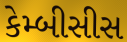
કેમ્બીસીસ